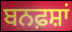
ਬਨਫ਼ਸ਼ਾਂ